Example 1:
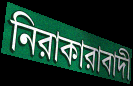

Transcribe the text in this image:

নিরাকারাবাদী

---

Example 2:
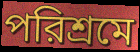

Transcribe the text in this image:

পরিশ্রমে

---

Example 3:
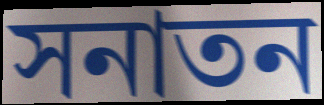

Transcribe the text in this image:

সনাতন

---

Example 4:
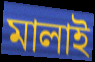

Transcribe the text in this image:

মালাই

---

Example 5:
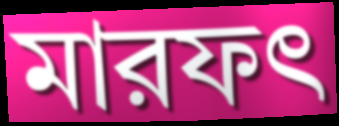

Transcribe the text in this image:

মারফৎ